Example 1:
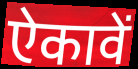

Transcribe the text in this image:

ऐकावें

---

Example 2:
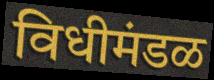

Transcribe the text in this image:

विधीमंडळ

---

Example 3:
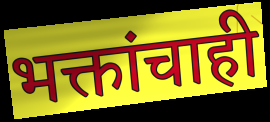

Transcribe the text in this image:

भक्तांचाही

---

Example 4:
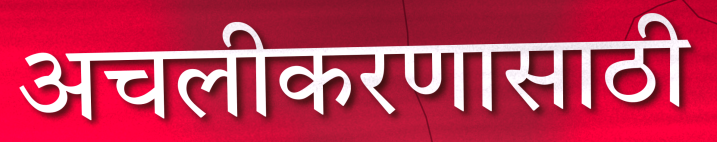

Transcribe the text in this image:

अचलीकरणासाठी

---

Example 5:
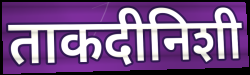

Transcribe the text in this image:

ताकदीनिशी